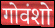
गोवंशो